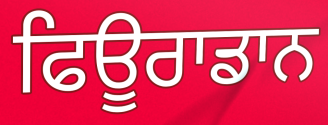
ਫਿਊਰਾਡਾਨ